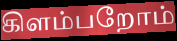
கிளம்பறோம்